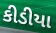
કીડીયા